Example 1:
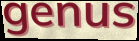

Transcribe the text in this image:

genus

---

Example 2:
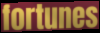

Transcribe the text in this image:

fortunes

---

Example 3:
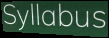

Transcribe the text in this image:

Syllabus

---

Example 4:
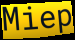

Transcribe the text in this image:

Miep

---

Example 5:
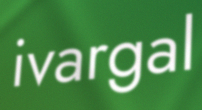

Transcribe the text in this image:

ivargal